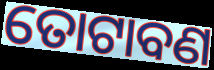
ତୋଟାବଣ